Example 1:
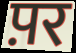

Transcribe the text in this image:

प़र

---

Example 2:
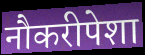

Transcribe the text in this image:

नौकरीपेशा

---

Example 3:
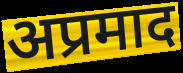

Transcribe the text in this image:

अप्रमाद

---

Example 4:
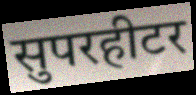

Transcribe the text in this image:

सुपरहीटर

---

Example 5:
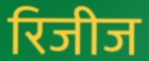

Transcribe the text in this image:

रिजीज